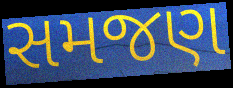
સમજણ